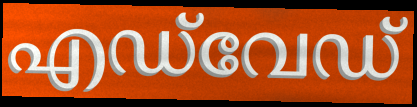
എഡ്‌വേഡ്